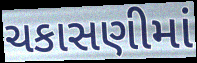
ચકાસણીમાં